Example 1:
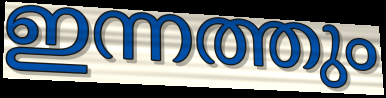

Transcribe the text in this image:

ഇന്നത്തും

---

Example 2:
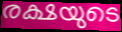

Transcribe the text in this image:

രക്ഷയുടെ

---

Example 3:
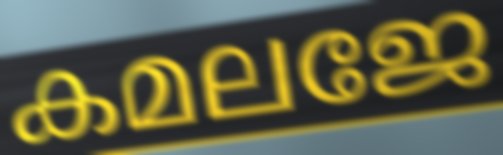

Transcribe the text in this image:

കമലജേ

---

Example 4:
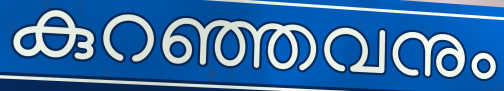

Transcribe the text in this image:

കുറഞ്ഞവനും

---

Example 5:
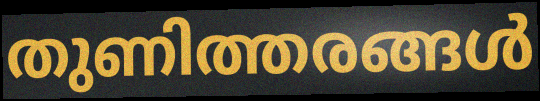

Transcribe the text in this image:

തുണിത്തരങ്ങൾ